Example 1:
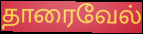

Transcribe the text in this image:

தாரைவேல்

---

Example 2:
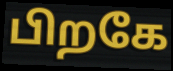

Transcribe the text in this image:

பிறகே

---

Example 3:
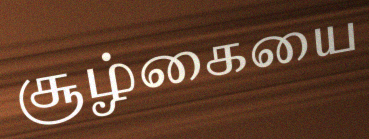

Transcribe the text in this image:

சூழ்கையை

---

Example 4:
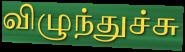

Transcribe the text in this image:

விழுந்துச்சு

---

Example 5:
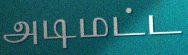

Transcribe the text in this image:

அடிமட்ட